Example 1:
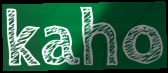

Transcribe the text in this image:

kaho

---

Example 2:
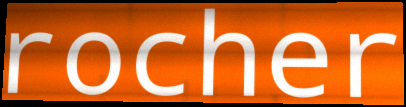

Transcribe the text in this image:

rocher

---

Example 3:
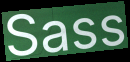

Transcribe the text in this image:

Sass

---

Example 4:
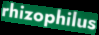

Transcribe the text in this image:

rhizophilus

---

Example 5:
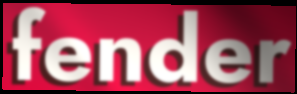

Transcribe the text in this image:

fender